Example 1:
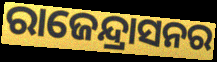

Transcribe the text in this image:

ରାଜେନ୍ଦ୍ରାସନର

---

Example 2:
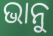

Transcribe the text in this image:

ଭାନୁ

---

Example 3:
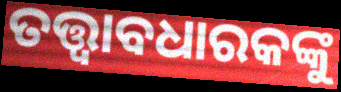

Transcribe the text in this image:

ତତ୍ତ୍ଵାବଧାରକଙ୍କୁ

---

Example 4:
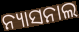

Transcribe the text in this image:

ନ୍ୟାସନାଲ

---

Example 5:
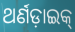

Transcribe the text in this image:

ଥର୍ଣଡ଼ାଇକ୍